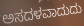
ಅಸದಳವಾದುದು